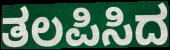
ತಲಪಿಸಿದ